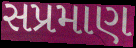
સપ્રમાણ